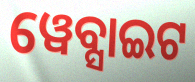
ୱେବ୍ସାଇଟ